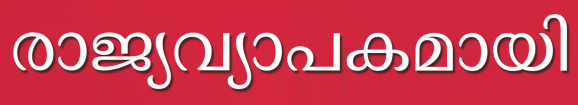
രാജ്യവ്യാപകമായി